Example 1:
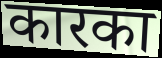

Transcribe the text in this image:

कारका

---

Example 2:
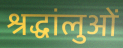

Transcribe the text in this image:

श्रद्धांलुओं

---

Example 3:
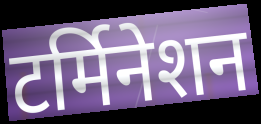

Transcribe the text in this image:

टर्मिनेशन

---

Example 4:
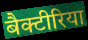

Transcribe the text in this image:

बैक्टीरिया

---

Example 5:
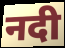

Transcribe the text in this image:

नदी